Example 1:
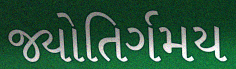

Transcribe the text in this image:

જ્યોતિર્ગમય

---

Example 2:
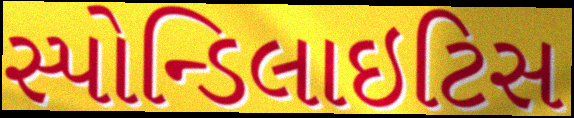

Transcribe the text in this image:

સ્પોન્ડિલાઇટિસ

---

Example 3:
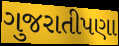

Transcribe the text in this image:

ગુજરાતીપણા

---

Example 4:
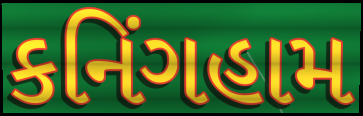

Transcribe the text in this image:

કનિંગહામ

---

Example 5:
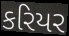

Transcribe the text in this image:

કરિયર